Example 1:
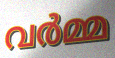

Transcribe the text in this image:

വർമ്മ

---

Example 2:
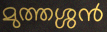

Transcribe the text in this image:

മുത്തശ്ശൻ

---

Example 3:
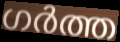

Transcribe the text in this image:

ഗർത്ത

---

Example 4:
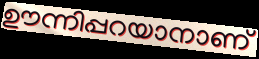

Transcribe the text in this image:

ഊന്നിപ്പറയാനാണ്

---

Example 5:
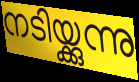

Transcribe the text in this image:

നടിയ്ക്കുന്നു